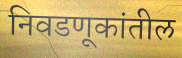
निवडणूकांतील